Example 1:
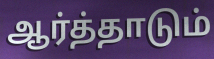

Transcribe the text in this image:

ஆர்த்தாடும்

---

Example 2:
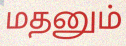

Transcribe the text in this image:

மதனும்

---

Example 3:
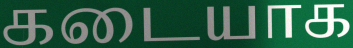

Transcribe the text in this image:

கடையாக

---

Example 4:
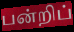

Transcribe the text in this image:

பன்றிப்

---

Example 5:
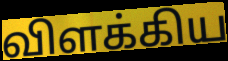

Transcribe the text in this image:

விளக்கிய